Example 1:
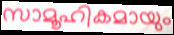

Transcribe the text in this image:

സാമൂഹികമായും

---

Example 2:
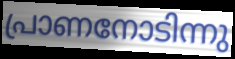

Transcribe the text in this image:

പ്രാണനോടിന്നു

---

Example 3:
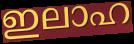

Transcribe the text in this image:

ഇലാഹ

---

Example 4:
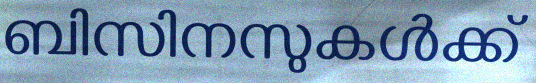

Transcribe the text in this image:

ബിസിനസുകൾക്ക്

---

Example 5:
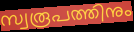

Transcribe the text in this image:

സ്വരൂപത്തിനും